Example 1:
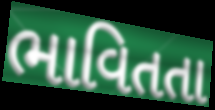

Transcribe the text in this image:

ભાવિતતા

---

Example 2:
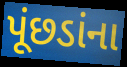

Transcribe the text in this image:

પૂંછડાંના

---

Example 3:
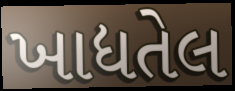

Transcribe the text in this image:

ખાદ્યતેલ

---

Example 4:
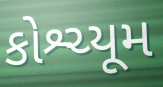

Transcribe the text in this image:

કોશ્ચ્યૂમ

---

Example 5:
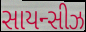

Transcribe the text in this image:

સાયન્સીઝ